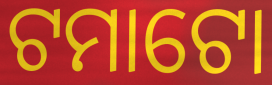
ଟମାଟୋ